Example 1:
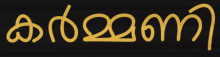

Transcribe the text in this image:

കർമ്മണി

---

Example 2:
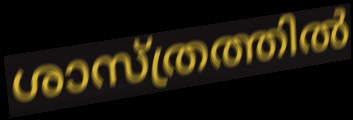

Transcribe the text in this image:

ശാസ്ത്രത്തിൽ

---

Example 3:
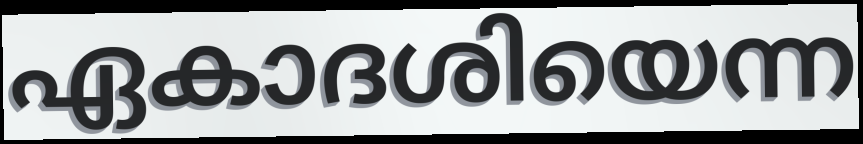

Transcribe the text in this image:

ഏകാദശിയെന്ന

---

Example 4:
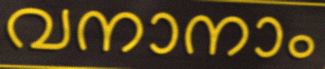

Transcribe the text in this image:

വനാനാം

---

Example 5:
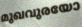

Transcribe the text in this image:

മുഖവുരയോ